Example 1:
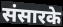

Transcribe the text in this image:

संसारके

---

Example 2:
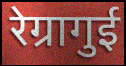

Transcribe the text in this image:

रेग्रागुई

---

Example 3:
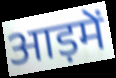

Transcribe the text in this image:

आड़में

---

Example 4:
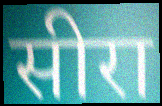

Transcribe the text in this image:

सीरा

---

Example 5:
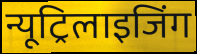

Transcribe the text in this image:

न्यूट्रिलाइजिंग